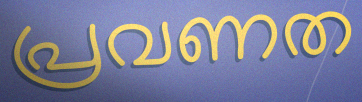
പ്രവണത